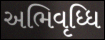
અભિવૃધ્ધિ